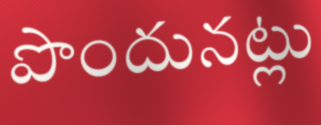
పొందునట్లు